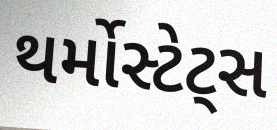
થર્મોસ્ટેટ્સ